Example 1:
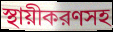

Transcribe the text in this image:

স্থায়ীকরণসহ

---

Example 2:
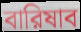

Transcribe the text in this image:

বারিষাব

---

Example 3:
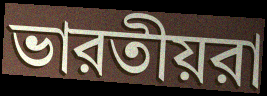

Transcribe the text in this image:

ভারতীয়রা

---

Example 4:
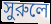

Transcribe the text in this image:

সুরুলে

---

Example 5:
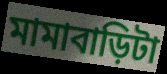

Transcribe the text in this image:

মামাবাড়িটা